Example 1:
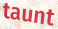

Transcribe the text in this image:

taunt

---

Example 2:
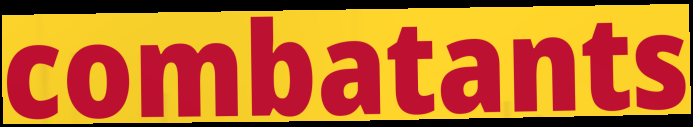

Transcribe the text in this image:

combatants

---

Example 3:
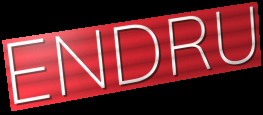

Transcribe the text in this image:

ENDRU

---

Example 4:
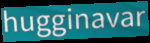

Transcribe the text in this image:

hugginavar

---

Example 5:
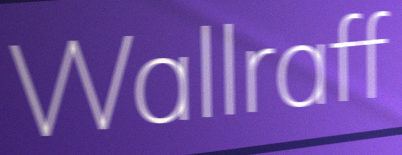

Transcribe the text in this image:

Wallraff